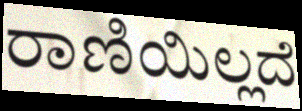
ರಾಣಿಯಿಲ್ಲದೆ